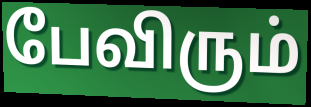
பேவிரும்